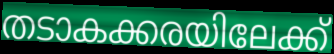
തടാകക്കരയിലേക്ക്